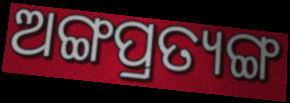
ଅଙ୍ଗପ୍ରତ୍ୟଙ୍ଗ